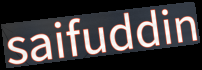
saifuddin